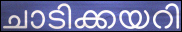
ചാടിക്കയറി